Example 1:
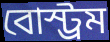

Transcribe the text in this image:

বোস্ট্রম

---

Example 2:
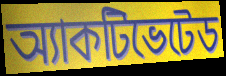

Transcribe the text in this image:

অ্যাকটিভেটেড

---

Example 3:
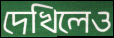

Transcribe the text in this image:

দেখিলেও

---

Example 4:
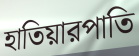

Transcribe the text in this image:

হাতিয়ারপাতি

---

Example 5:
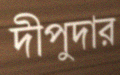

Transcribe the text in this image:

দীপুদার